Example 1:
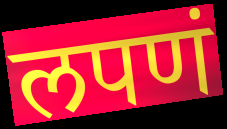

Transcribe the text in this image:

लपणं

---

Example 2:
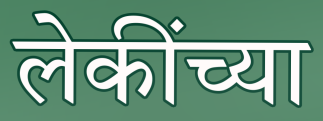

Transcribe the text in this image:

लेकींच्या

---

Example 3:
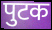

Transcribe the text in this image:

पुटक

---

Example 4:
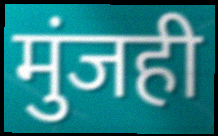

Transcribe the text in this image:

मुंजही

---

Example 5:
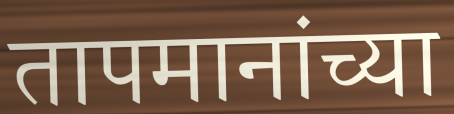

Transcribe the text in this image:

तापमानांच्या